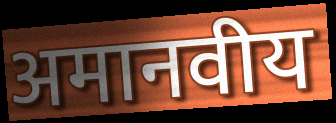
अमानवीय